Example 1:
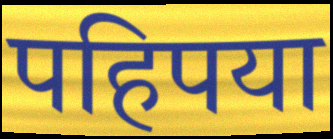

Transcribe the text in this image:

पहिपया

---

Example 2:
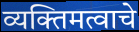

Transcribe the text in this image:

व्यक्तिमत्वाचे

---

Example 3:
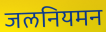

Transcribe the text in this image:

जलनियमन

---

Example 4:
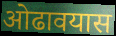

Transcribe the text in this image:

ओढावयास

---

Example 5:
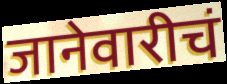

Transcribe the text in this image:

जानेवारीचं